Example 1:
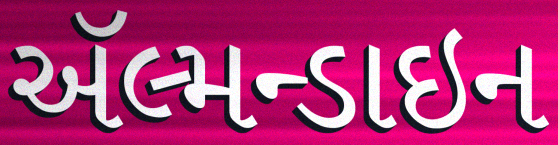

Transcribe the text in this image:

ઍલ્મન્ડાઇન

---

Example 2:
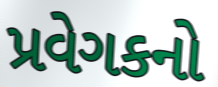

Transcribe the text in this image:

પ્રવેગકનો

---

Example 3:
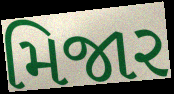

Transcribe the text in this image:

મિજાર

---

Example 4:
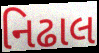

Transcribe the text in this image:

નિઢાલ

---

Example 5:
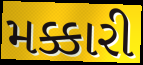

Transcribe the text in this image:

મક્કારી